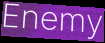
Enemy